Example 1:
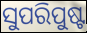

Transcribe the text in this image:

ସୁପରିପୁଷ୍ଟ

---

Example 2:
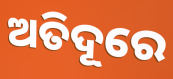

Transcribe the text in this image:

ଅତିଦୂରେ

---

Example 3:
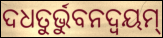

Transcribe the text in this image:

ଦଧତୁର୍ଭୁବନଦ୍ଵୟମ୍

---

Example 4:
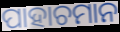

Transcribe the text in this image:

ପାହାଚମାନ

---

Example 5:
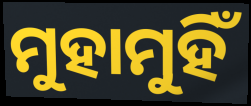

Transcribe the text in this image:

ମୁହାମୁହିଁ